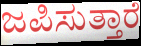
ಜಪಿಸುತ್ತಾರೆ